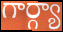
గార్గ్యా